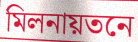
মিলনায়তনে